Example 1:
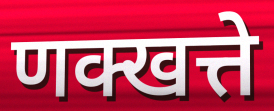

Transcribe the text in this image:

णक्खत्ते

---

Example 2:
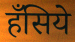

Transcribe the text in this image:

हँसिये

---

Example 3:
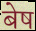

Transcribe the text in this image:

बेष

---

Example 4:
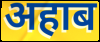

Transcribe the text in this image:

अहाब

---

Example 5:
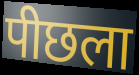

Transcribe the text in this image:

पीछला